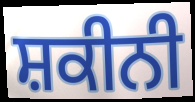
ਸ਼ਕੀਨੀ